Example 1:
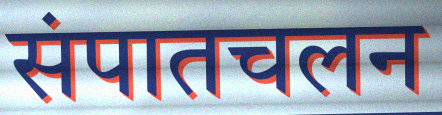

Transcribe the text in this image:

संपातचलन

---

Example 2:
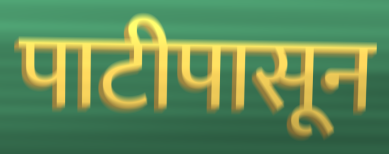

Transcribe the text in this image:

पाटीपासून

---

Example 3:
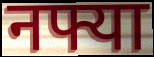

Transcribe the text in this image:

नफ्या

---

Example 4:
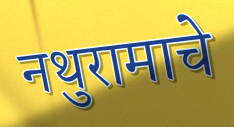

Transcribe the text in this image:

नथुरामाचे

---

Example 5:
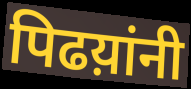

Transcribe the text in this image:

पिढय़ांनी